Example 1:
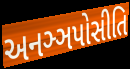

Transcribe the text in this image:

અનઞ્ઞપોસીતિ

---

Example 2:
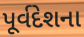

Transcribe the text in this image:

પૂર્વદેશના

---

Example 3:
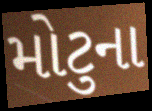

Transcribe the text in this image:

મોટુના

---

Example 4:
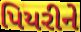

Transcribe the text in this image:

પિયરીને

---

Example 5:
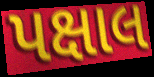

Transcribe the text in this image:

પક્ષાલ